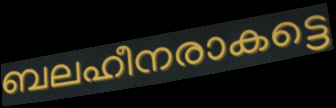
ബലഹീനരാകട്ടെ